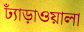
ঢ্যাঁড়াওয়ালা